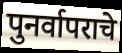
पुनर्वापराचे